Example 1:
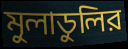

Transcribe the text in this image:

মুলাডুলির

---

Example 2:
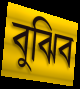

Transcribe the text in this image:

বুঝিব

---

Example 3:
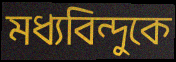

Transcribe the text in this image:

মধ্যবিন্দুকে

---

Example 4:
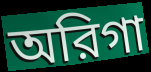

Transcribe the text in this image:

অরিগা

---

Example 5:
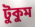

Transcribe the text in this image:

টুকুম